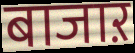
बाजाऱ